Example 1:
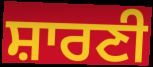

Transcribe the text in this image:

ਸ਼ਾਰਣੀ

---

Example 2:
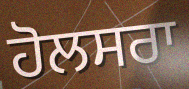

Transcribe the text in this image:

ਹੋਲਸਰਾ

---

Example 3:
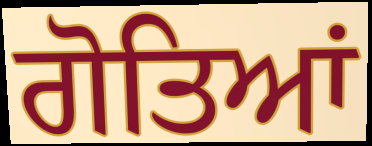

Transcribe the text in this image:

ਗੋਤਿਆਂ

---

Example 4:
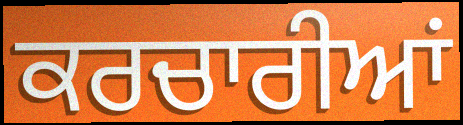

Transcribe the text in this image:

ਕਰਚਾਰੀਆਂ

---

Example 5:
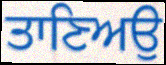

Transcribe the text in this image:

ਤਾਣਿਅਉ